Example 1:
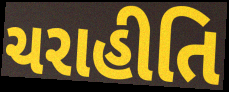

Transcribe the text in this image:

ચરાહીતિ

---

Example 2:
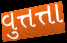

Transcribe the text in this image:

વુત્તત્તા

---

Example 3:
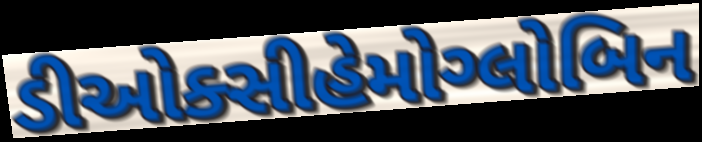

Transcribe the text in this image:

ડીઓક્સીહેમોગ્લોબિન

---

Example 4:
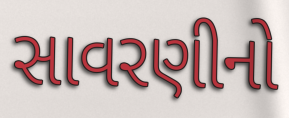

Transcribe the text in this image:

સાવરણીનો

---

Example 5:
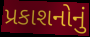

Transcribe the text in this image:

પ્રકાશનોનું